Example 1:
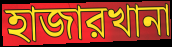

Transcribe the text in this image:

হাজারখানা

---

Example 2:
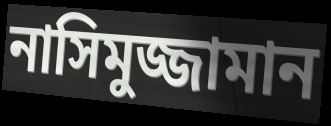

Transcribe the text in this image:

নাসিমুজ্জামান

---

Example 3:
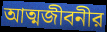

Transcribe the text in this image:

আত্মজীবনীর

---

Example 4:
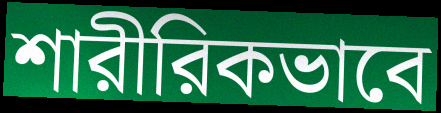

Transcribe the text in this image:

শারীরিকভাবে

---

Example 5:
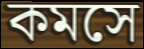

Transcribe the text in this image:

কমসে